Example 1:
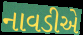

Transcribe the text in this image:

નાવડીએ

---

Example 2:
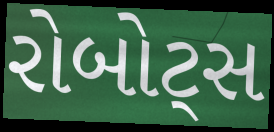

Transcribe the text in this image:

રોબોટ્સ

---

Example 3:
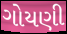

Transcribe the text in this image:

ગોયણી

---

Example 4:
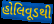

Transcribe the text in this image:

હોલિવૂડથી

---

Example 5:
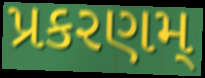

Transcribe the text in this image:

પ્રકરણમ્